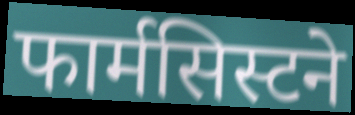
फार्मसिस्टने